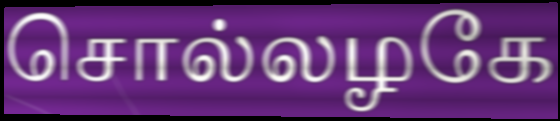
சொல்லழகே